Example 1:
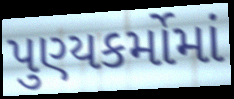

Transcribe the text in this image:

પુણ્યકર્મોમાં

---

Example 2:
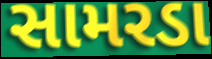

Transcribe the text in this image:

સામરડા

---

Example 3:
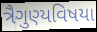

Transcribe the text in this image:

ત્રૈગુણ્યવિષયા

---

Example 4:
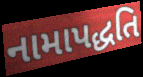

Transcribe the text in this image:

નામાપદ્ધતિ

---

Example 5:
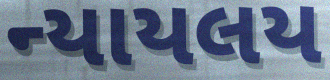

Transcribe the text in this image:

ન્યાયલય